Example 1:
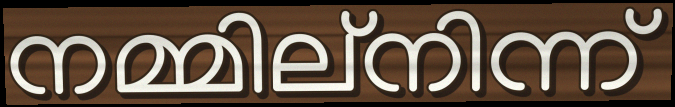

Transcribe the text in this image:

നമ്മില്നിന്ന്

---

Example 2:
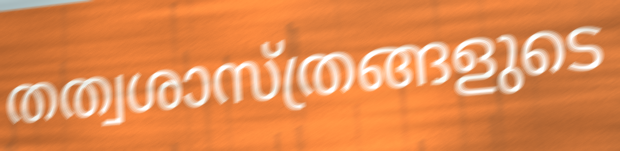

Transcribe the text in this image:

തത്വശാസ്ത്രങ്ങളുടെ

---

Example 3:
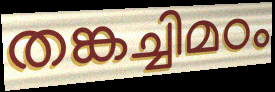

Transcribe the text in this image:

തങ്കച്ചിമഠം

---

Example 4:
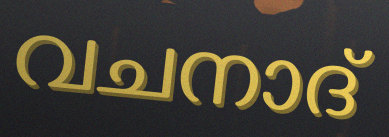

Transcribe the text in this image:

വചനാദ്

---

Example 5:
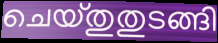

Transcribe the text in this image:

ചെയ്തുതുടങ്ങി